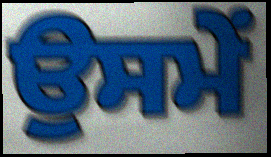
ਉਸਮੇਂ